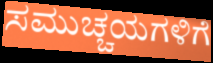
ಸಮುಚ್ಚಯಗಳಿಗೆ